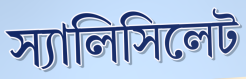
স্যালিসিলেট